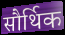
सौर्थिक